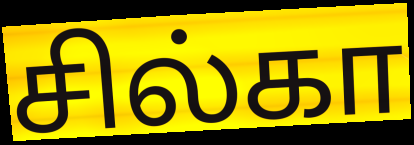
சில்கா